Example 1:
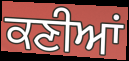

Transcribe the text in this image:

ਕਣੀਆਂ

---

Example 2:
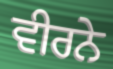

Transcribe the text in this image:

ਵੀਰਨੇ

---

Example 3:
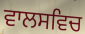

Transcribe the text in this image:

ਵਾਲਸਵਿਚ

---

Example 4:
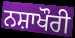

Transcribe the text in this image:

ਨਸ਼ਾਖੌਰੀ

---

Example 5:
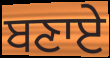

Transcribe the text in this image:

ਬਣਾਏ